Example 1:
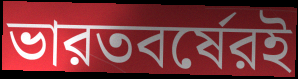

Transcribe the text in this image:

ভারতবর্ষেরই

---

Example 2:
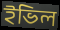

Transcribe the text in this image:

ইভিল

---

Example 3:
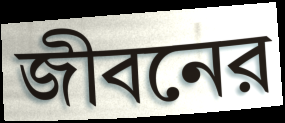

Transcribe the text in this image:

জীবনের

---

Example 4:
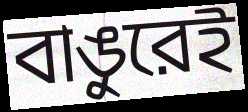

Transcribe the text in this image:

বাঙুরেই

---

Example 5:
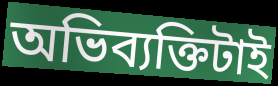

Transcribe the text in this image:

অভিব্যক্তিটাই